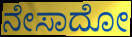
ನೇಸಾದೋ